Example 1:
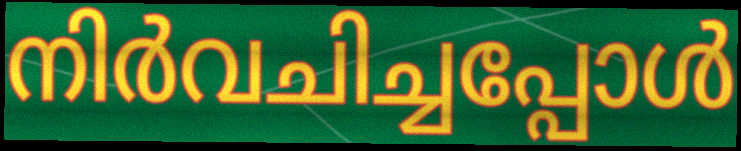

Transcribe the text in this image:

നിർവചിച്ചപ്പോൾ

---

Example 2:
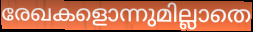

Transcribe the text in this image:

രേഖകളൊന്നുമില്ലാതെ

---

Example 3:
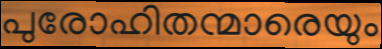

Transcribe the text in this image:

പുരോഹിതന്മാരെയും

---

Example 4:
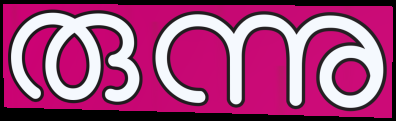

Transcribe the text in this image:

രുന്നു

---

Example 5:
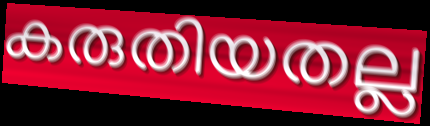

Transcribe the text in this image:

കരുതിയതല്ല